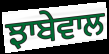
ਝਾਬੇਵਾਲ